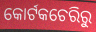
କୋର୍ଟକଚେରିରୁ